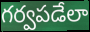
గర్వపడేలా